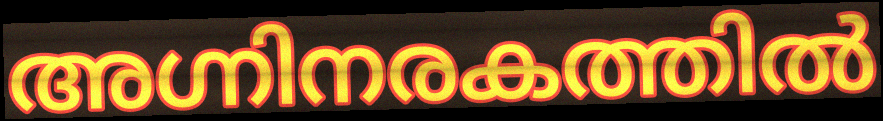
അഗ്നിനരകത്തിൽ